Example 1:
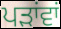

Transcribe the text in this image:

ਪੜਾਂਵਾਂ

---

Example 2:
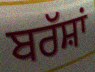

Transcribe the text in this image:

ਬਰੱਸ਼ਾਂ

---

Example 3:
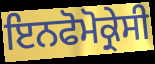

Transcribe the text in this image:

ਇਨਫੋਮੋਕ੍ਰੇਸੀ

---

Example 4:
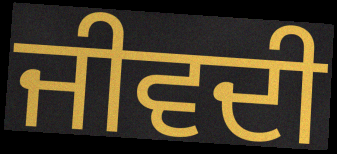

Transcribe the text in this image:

ਜੀਵਦੀ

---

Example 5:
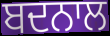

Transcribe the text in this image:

ਬਦਨਾਲ